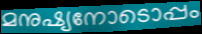
മനുഷ്യനോടൊപ്പം